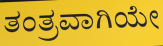
ತಂತ್ರವಾಗಿಯೇ